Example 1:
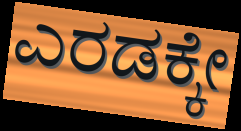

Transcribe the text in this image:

ಎರಡಕ್ಕೇ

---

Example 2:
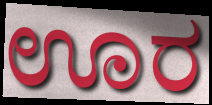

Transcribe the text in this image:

ಊರ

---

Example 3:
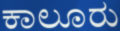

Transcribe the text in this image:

ಕಾಲೂರು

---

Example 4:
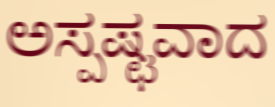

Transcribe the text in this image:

ಅಸ್ಪಷ್ಟವಾದ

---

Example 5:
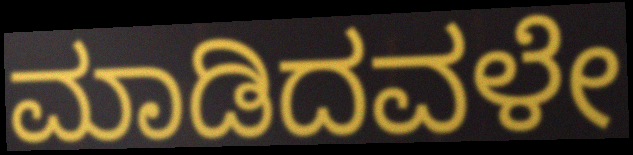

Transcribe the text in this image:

ಮಾಡಿದವಳೇ